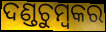
ଦଣ୍ଡଚୁମ୍ବକର